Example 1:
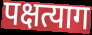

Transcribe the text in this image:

पक्षत्याग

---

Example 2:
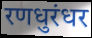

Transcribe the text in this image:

रणधुरंधर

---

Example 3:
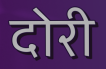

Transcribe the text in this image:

दोरी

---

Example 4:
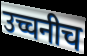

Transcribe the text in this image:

उच्चनीच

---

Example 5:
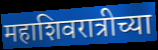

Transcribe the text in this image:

महाशिवरात्रीच्या